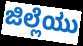
ಜಿಲ್ಲೆಯು